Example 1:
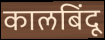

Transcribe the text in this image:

कालबिंदू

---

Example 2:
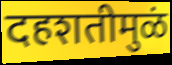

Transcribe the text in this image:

दहशतीमुळं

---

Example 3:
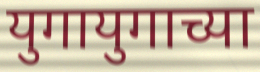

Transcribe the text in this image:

युगायुगाच्या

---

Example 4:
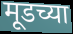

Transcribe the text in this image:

मूडच्या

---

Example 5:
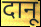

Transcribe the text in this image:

दानू